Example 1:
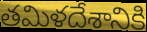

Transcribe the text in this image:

తమిళదేశానికి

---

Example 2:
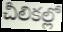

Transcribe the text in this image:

చీలికల్లో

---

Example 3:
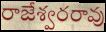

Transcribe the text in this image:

రాజేశ్వరరావు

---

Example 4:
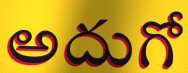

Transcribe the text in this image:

అదుగో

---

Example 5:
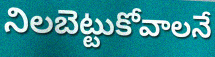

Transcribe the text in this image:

నిలబెట్టుకోవాలనే